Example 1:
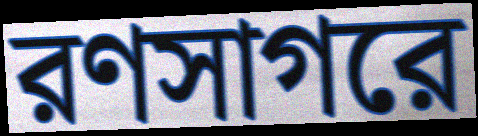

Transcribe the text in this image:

রণসাগরে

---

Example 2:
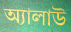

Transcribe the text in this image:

অ্যালাউ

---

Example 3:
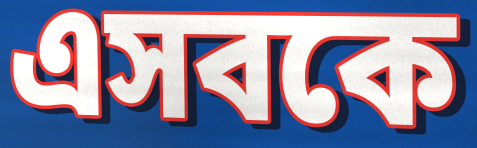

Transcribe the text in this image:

এসবকে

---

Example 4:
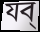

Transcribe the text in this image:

যব্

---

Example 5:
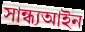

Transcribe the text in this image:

সান্ধ্যআইন